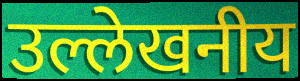
उल्लेखनीय